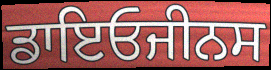
ਡਾਇਓਜੀਨਸ